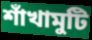
শাঁখামুটি